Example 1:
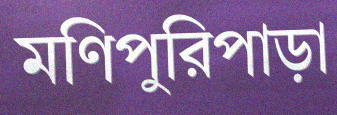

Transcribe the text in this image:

মণিপুরিপাড়া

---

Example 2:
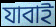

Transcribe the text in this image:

যাবাই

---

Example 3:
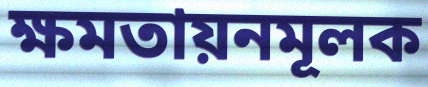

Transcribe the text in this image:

ক্ষমতায়নমূলক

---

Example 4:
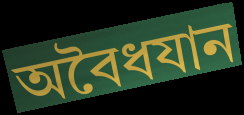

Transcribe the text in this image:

অবৈধযান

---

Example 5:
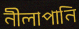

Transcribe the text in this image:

নীলাপানি